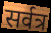
सर्वत्र